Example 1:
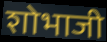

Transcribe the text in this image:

शोभाजी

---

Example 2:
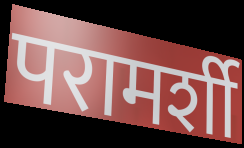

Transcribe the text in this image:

परामर्शी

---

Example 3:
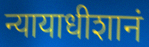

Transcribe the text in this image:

न्यायाधीशानं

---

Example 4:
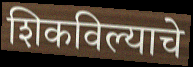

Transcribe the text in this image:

शिकविल्याचे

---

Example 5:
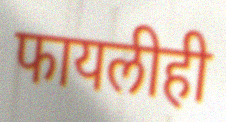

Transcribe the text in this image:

फायलीही